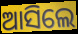
ଆସିଲେ